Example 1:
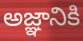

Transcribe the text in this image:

అజ్ఞానికి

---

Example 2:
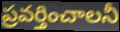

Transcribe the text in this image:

ప్రవర్తించాలనీ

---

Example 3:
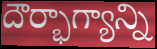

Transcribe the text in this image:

దౌర్భాగ్యాన్ని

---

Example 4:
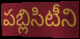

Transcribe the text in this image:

పబ్లిసిటీని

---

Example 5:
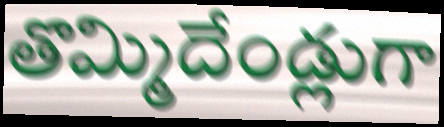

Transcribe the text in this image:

తొమ్మిదేండ్లుగా